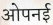
ओपनई